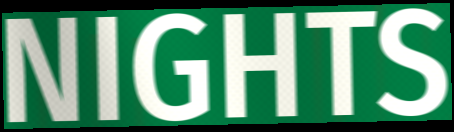
NIGHTS